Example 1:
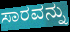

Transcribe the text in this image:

ಸಾರವನ್ನು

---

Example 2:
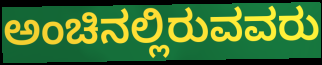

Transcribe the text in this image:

ಅಂಚಿನಲ್ಲಿರುವವರು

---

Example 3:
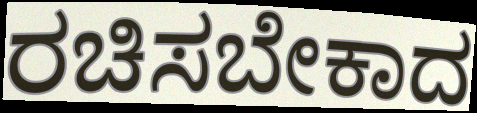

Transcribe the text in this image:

ರಚಿಸಬೇಕಾದ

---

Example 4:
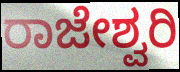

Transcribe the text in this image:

ರಾಜೇಶ್ವರಿ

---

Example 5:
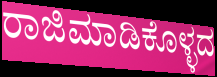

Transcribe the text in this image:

ರಾಜಿಮಾಡಿಕೊಳ್ಳದ